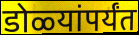
डोळ्यांपर्यंत